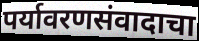
पर्यावरणसंवादाचा